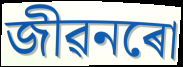
জীৱনৰো